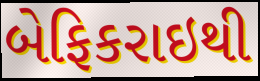
બેફિકરાઇથી